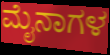
ಮೈನಾಗಳ